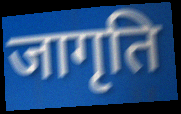
जागृति